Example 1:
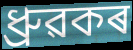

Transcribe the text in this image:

ধ্ৰুৱকৰ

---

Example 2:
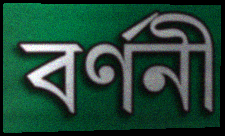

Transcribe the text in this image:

বৰ্ণনী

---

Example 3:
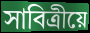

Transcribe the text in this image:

সাবিত্ৰীয়ে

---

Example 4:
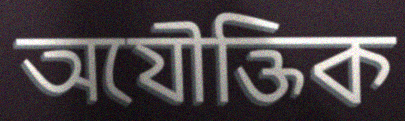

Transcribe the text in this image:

অযৌক্তিক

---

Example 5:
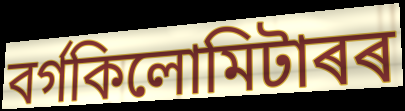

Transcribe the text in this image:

বৰ্গকিলোমিটাৰৰ